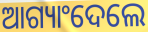
ଆଗ୍ୟାଂଦେଲେ